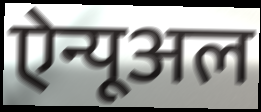
ऐन्यूअल